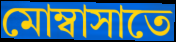
মোম্বাসাতে